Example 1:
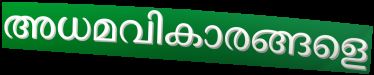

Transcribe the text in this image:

അധമവികാരങ്ങളെ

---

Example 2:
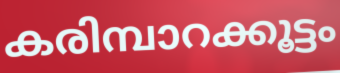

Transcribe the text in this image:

കരിമ്പാറക്കൂട്ടം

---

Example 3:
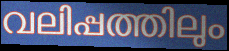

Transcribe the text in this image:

വലിപ്പത്തിലും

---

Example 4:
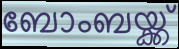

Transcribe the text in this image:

ബോംബയ്ക്ക്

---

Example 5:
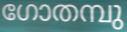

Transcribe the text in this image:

ഗോതമ്പു